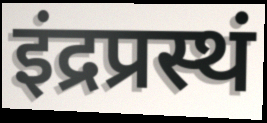
इंद्रप्रस्थं